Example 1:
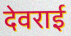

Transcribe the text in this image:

देवराई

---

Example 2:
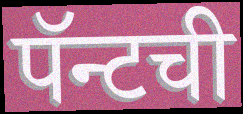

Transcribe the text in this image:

पॅन्टची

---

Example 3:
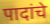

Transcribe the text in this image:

पादांचे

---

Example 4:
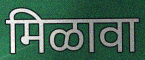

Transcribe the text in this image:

मिळावा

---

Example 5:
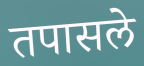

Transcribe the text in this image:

तपासले